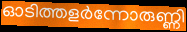
ഓടിത്തളർന്നോരുണ്ണി